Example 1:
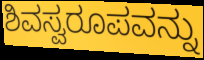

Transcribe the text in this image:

ಶಿವಸ್ವರೂಪವನ್ನು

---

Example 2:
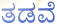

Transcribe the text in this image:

ತಡವೆ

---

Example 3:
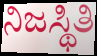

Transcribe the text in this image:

ನಿಜಸ್ಥಿತಿ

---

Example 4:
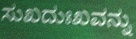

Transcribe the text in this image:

ಸುಖದುಃಖವನ್ನು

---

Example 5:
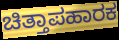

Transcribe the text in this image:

ಚಿತ್ತಾಪಹಾರಕ